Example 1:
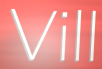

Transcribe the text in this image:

Vill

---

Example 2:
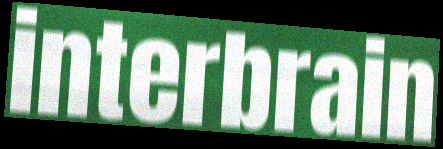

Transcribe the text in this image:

interbrain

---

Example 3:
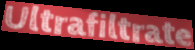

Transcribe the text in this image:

Ultrafiltrate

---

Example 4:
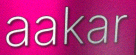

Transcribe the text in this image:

aakar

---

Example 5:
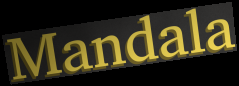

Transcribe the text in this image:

Mandala